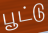
பூட்டு